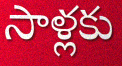
సాళ్లకు